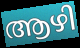
ആഴി